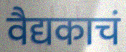
वैद्यकाचं